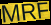
MRF